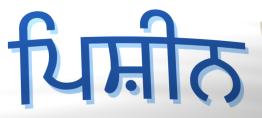
ਪਿਸ਼ੀਨ